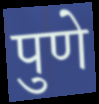
पुणे